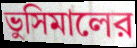
ভুসিমালের